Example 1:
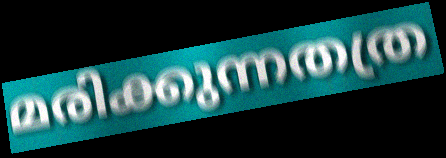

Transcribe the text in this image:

മരിക്കുന്നതത്ര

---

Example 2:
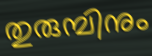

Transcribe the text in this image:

തുരുമ്പിനും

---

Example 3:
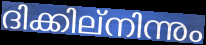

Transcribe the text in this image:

ദിക്കില്നിന്നും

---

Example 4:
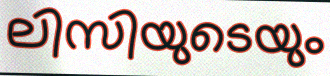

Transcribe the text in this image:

ലിസിയുടെയും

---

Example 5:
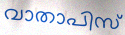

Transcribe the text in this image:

വാതാപിസ്